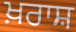
ਖ਼ਰਾਸ਼